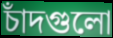
চাঁদগুলো